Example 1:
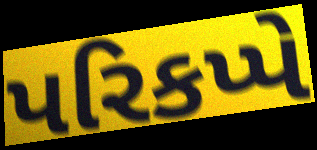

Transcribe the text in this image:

પરિકપ્પે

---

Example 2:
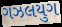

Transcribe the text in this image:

ગઝલયુગ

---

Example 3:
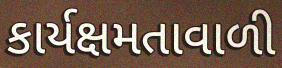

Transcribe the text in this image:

કાર્યક્ષમતાવાળી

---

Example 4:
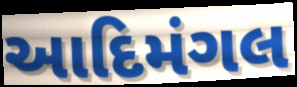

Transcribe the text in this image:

આદિમંગલ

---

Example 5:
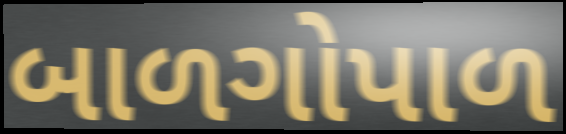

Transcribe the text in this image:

બાળગોપાળ